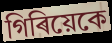
গিৰিয়েকে